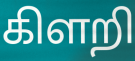
கிளறி